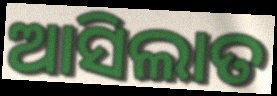
ଆସିଲାତ